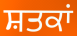
ਸ਼ਤਕਾਂ